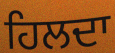
ਹਿਲਦਾ